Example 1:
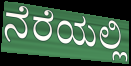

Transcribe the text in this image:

ನೆರೆಯಲ್ಲಿ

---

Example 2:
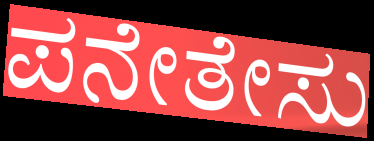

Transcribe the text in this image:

ಪನೇತೇಸು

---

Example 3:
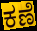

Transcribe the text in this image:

ಕಣೆ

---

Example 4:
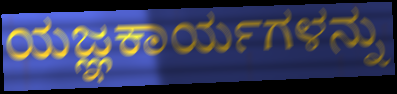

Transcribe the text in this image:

ಯಜ್ಞಕಾರ್ಯಗಳನ್ನು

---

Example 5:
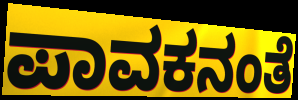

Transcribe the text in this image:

ಪಾವಕನಂತೆ